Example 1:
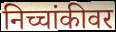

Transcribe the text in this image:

निच्चांकीवर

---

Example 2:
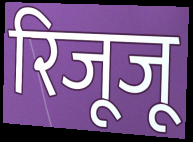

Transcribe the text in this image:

रिजूजू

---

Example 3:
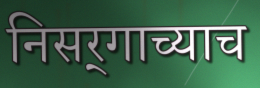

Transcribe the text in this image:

निसर्गाच्याच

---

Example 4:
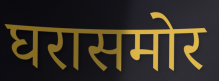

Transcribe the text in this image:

घरासमोर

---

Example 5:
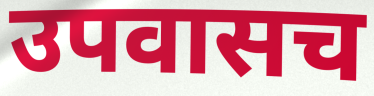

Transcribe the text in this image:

उपवासच